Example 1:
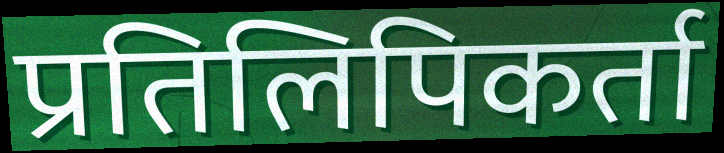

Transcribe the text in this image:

प्रतिलिपिकर्ता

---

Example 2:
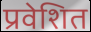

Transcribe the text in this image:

प्रवेशित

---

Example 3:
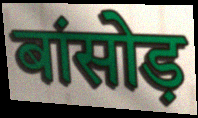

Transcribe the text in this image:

बांसोड़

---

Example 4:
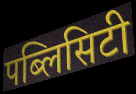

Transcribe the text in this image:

पब्लिसिटी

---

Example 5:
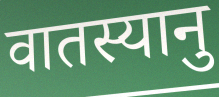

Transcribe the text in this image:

वातस्यानु